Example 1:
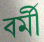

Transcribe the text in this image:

বৰ্মী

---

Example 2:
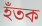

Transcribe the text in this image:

হঁতক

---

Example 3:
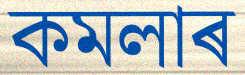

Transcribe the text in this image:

কমলাৰ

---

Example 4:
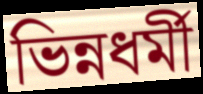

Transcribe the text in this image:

ভিন্নধৰ্মী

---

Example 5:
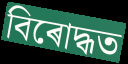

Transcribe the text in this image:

বিৰোদ্ধত